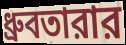
ধ্রুবতারার